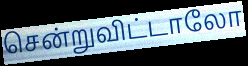
சென்றுவிட்டாலோ